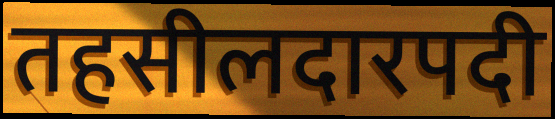
तहसीलदारपदी